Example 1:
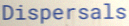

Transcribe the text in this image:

Dispersals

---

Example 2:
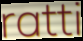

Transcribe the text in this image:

ratti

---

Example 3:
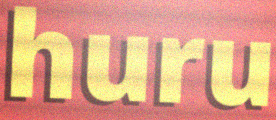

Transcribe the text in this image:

huru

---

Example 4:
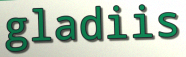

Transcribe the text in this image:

gladiis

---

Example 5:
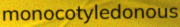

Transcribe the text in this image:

monocotyledonous